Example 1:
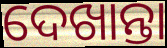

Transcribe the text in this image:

ଦେଖାନ୍ତା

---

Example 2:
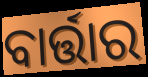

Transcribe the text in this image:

ବାର୍ତ୍ତାର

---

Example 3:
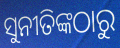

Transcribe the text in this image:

ସୁନୀତିଙ୍କଠାରୁ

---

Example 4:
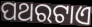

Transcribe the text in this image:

ପଥରଟାଏ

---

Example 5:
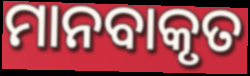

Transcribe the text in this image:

ମାନବାକୃତ